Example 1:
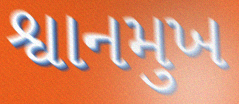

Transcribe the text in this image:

શ્વાનમુખ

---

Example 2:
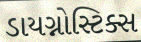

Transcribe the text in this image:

ડાયગ્નોસ્ટિક્સ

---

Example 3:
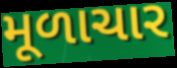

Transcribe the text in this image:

મૂળાચાર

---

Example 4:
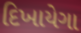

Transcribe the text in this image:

દિખાયેગા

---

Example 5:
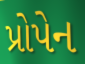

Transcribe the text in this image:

પ્રોપેન